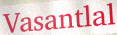
Vasantlal